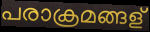
പരാക്രമങ്ങള്